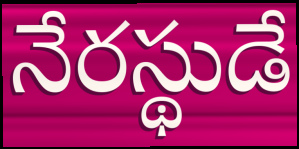
నేరస్థుడే